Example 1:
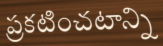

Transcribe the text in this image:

ప్రకటించటాన్ని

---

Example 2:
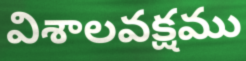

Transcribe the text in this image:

విశాలవక్షము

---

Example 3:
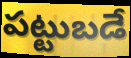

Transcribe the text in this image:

పట్టుబడే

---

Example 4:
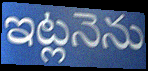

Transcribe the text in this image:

ఇట్లనెను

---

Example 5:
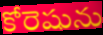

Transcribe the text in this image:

కోరెషును